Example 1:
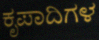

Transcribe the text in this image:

ಕೃಪಾದಿಗಳ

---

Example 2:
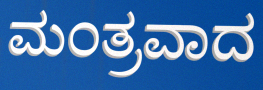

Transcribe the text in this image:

ಮಂತ್ರವಾದ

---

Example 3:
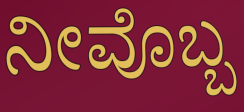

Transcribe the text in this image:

ನೀವೊಬ್ಬ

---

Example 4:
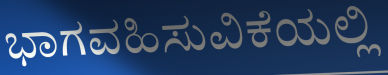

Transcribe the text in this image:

ಭಾಗವಹಿಸುವಿಕೆಯಲ್ಲಿ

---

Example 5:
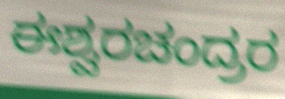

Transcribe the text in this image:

ಈಶ್ವರಚಂದ್ರರ